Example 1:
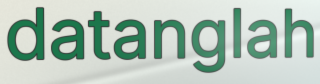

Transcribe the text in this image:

datanglah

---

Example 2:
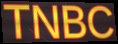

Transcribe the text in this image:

TNBC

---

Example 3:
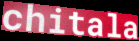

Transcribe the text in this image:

chitala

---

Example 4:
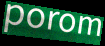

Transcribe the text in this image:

porom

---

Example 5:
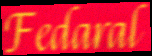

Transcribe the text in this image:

Fedaral